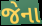
જેના